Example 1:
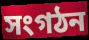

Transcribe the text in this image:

সংগঠন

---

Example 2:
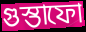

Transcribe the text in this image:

গুস্তাফো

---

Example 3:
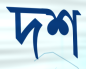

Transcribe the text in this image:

দশ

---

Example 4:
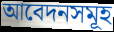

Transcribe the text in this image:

আবেদনসমূহ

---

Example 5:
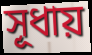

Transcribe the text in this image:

সূধায়